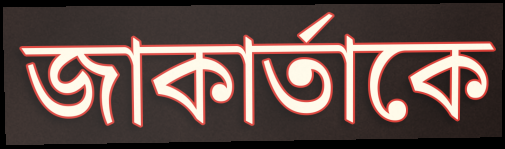
জাকার্তাকে